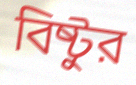
বিষ্টুর